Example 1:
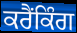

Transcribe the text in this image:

ਕਰੈਂਕਿੰਗ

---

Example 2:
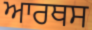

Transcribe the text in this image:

ਆਰਥਸ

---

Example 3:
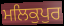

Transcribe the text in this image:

ਮਲਿਕੁਪੁਰ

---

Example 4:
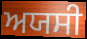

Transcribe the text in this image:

ਅਯਸੀ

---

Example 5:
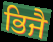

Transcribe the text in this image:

ਭਿਜੈ